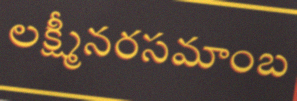
లక్ష్మీనరసమాంబ